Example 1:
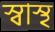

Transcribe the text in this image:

স্বাস্থ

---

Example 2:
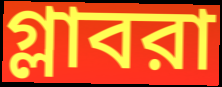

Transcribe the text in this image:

গ্লাবরা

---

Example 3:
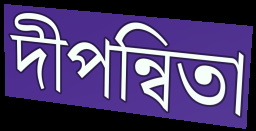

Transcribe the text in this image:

দীপন্বিতা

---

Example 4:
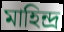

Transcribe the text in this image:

মাহিন্দ্র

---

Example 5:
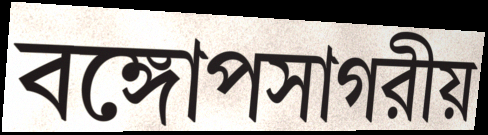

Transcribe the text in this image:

বঙ্গোপসাগরীয়